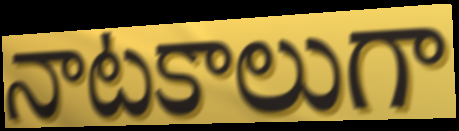
నాటకాలుగా